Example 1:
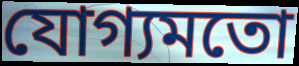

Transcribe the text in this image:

যোগ্যমতো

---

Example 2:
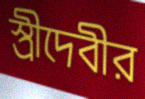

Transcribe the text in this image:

স্ত্রীদেবীর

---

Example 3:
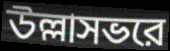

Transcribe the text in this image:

উল্লাসভরে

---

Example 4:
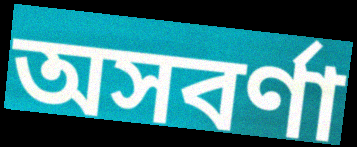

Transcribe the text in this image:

অসবর্ণা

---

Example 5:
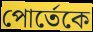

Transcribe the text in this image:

পোর্তেকে